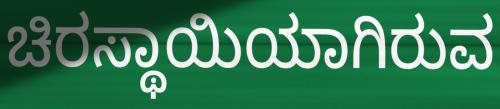
ಚಿರಸ್ಥಾಯಿಯಾಗಿರುವ